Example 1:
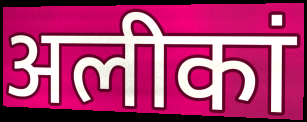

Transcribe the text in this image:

अलीकां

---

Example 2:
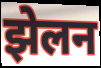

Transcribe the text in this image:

झेलन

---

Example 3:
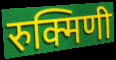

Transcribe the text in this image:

रुक्मिणी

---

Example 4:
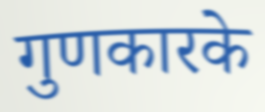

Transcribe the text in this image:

गुणकारके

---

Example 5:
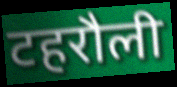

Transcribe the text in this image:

टहरौली